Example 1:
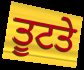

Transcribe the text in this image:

ਤੂਟਤੇ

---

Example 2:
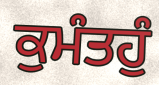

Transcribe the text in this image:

ਕੁਮੰਤਹੁੰ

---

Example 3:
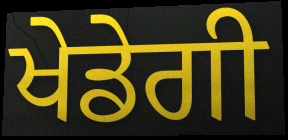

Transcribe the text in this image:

ਖੇਡੇਗੀ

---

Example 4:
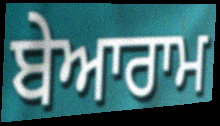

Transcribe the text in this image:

ਬੇਆਰਾਮ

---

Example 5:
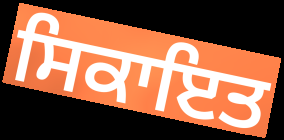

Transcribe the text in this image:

ਸਿਕਾਇਤ